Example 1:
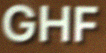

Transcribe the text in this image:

GHF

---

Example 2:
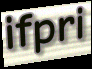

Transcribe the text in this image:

ifpri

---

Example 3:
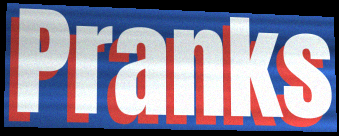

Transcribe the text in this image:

Pranks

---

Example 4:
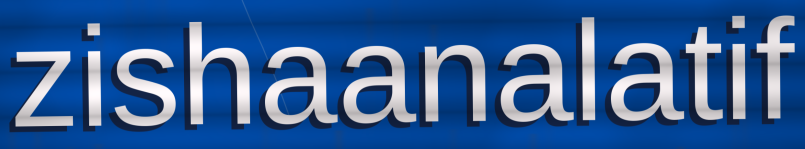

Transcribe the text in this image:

zishaanalatif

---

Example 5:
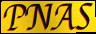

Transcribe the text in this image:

PNAS